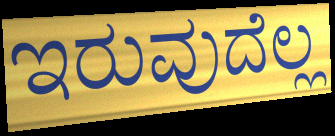
ಇರುವುದೆಲ್ಲ